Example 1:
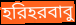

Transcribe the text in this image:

হরিহরবাবু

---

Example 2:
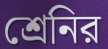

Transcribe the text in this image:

শ্রেনির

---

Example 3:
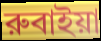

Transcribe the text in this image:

রুবাইয়া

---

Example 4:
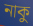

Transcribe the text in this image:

নাকু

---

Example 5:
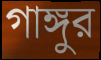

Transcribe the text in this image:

গাঙ্গুর